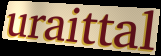
uraittal